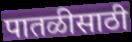
पातळीसाठी